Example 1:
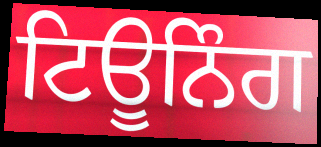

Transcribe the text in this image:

ਟਿਊਨਿੰਗ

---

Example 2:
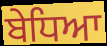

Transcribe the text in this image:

ਬੇਧਿਆ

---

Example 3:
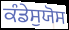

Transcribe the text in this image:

ਕੰਡੇਸੁਯੋਸ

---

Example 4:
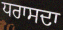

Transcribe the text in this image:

ਧਰਾਸਦਾ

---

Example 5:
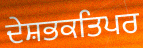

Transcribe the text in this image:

ਦੇਸ਼ਭਕਤਿਪਰ